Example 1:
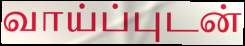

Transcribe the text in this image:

வாய்ப்புடன்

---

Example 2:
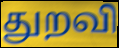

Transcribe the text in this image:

துறவி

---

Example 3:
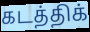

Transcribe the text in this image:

கடத்திக்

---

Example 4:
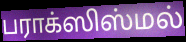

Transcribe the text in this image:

பராக்ஸிஸ்மல்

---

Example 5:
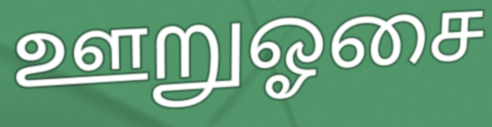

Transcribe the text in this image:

ஊறுஓசை